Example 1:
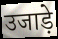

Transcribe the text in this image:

उजाड़े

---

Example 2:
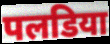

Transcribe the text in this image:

पलडिया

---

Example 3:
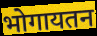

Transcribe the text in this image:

भोगायतन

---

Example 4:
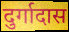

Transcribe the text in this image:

दुर्गादास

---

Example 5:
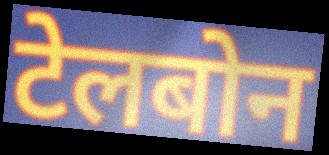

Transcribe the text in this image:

टेलबोन